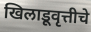
खिलाडूवृत्तीचे